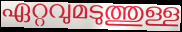
ഏറ്റവുമടുത്തുള്ള